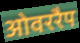
ओवररैप